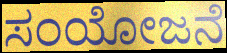
ಸಂಯೋಜನೆ